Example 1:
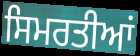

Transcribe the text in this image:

ਸਿਮਰਤੀਆਂ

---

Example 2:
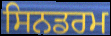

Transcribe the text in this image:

ਸਿਨਡਰਮ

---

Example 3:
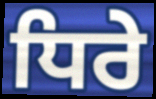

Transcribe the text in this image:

ਧਿਰੇ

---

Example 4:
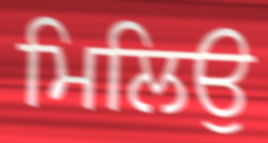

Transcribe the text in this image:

ਮਿਲਿਉ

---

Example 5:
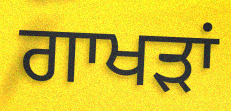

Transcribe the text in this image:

ਗਾਖੜਾਂ